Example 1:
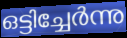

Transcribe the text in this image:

ഒട്ടിച്ചേർന്നു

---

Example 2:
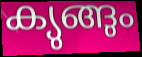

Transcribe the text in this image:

ക്യുങ്ങും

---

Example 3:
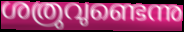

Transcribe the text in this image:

ശത്രുവുണ്ടെന്നു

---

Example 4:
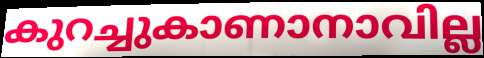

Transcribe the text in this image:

കുറച്ചുകാണാനാവില്ല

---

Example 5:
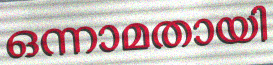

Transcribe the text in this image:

ഒന്നാമതായി